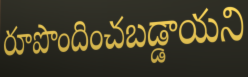
రూపొందించబడ్డాయని